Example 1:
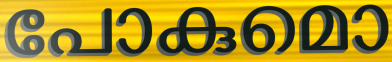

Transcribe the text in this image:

പോകുമൊ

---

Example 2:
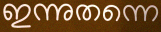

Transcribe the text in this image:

ഇന്നുതന്നെ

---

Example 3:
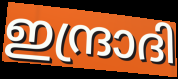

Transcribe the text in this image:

ഇന്ദ്രാദി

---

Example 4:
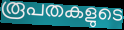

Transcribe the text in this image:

രൂപതകളുടെ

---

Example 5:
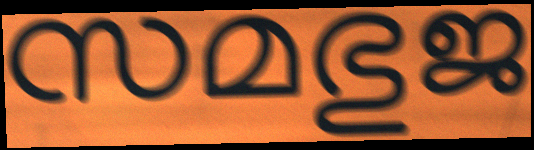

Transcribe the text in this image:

സമഭുജ